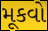
મૂકવો